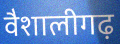
वैशालीगढ़